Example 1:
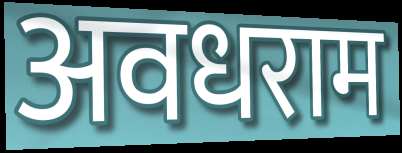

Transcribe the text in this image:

अवधराम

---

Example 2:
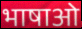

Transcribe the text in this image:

भाषाओ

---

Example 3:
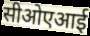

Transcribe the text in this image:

सीओएआई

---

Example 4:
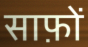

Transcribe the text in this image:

साफ़ों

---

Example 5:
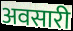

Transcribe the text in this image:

अवसारी